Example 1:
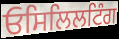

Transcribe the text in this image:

ਓਸਿਲਿਲਟਿੰਗ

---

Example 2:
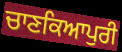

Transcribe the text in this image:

ਚਾਣਕਿਆਪੁਰੀ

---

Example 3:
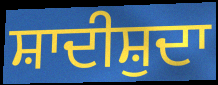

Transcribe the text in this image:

ਸ਼ਾਦੀਸ਼ੁਦਾ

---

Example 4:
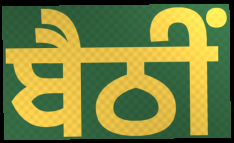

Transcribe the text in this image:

ਬੈਠੀਂ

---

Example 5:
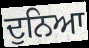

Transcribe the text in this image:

ਦੁਨਿਆ